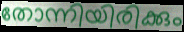
തോന്നിയിരിക്കും